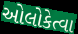
ઓલોકેત્વા